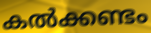
കൽക്കണ്ടം